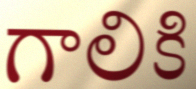
గాలికి